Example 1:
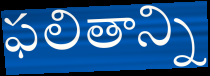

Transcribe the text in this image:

ఫలితాన్ని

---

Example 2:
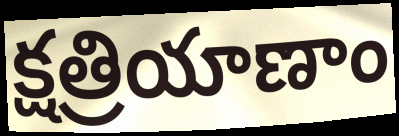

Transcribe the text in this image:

క్షత్రియాణాం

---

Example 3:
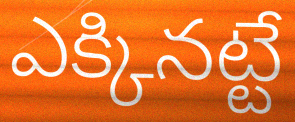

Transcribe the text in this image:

ఎక్కినట్టే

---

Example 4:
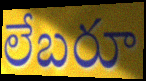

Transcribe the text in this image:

లేబరూ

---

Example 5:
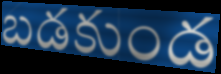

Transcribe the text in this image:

బడకుండ